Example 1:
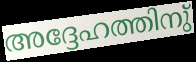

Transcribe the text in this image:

അദ്ദേഹത്തിനു്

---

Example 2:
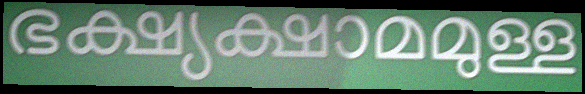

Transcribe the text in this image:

ഭക്ഷ്യക്ഷാമമുള്ള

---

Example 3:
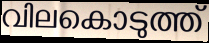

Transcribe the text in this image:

വിലകൊടുത്ത്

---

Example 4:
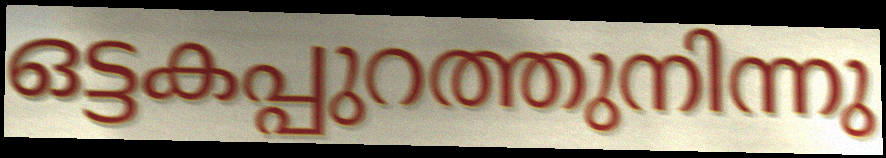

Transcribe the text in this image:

ഒട്ടകപ്പുറത്തുനിന്നു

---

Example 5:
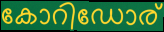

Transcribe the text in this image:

കോറിഡോര്